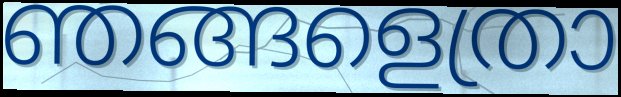
ഞങ്ങളെത്രാ